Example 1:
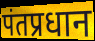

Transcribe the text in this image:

पंतप्रधान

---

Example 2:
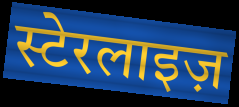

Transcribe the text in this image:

स्टेरलाइज़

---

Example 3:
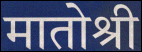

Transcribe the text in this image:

मातोश्री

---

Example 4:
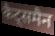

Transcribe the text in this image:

कैट्समैन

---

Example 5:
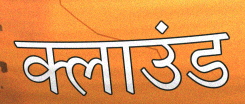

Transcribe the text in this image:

क्लाउंड